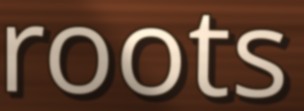
roots